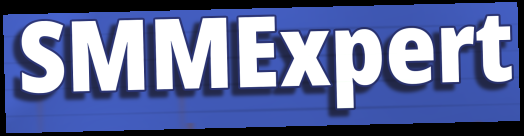
SMMExpert